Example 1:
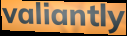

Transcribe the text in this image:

valiantly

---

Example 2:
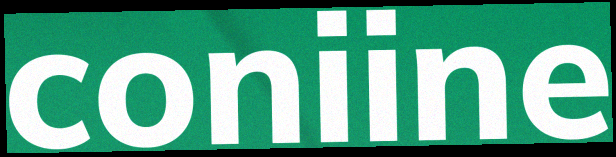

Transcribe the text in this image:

coniine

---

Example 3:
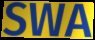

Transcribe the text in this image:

SWA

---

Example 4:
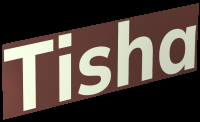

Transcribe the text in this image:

Tisha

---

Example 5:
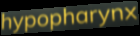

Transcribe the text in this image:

hypopharynx